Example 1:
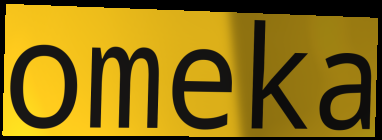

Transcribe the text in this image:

omeka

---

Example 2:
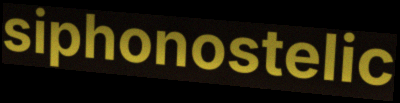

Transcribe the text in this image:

siphonostelic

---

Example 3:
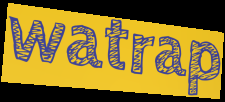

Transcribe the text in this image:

watrap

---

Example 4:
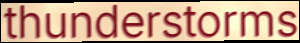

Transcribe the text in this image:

thunderstorms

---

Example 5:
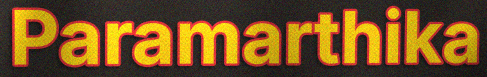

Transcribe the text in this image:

Paramarthika